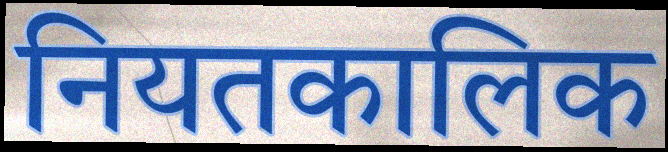
नियतकालिक